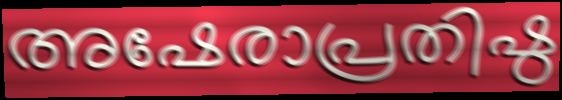
അഷേരാപ്രതിഷ്ഠ